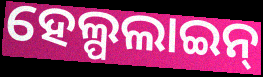
ହେଲ୍ପଲାଇନ୍